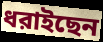
ধরাইছেন